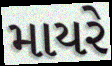
માયરે